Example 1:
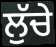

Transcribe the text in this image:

ਲੁੱਚੇ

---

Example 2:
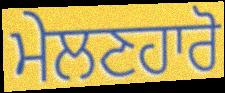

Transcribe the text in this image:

ਮੇਲਣਹਾਰੋ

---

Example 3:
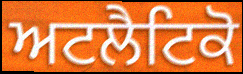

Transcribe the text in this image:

ਅਟਲੈਟਿਕੋ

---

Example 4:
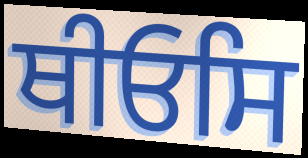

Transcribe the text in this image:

ਥੀਓਸਿ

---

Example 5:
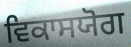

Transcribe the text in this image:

ਵਿਕਾਸਯੋਗ